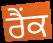
ਰੈੰਕ